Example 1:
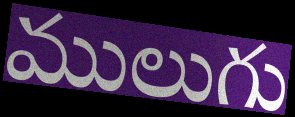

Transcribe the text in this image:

ములుగు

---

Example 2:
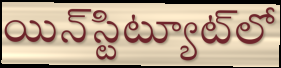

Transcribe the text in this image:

యిన్‌స్టిట్యూట్‌లో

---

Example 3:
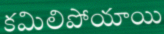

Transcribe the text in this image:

కమిలిపోయాయి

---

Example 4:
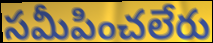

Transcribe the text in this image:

సమీపించలేరు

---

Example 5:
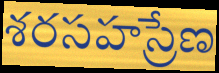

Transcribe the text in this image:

శరసహస్రేణ